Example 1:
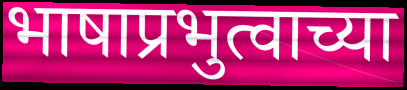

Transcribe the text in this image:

भाषाप्रभुत्वाच्या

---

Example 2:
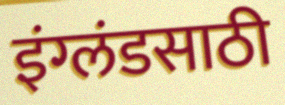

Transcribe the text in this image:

इंग्लंडसाठी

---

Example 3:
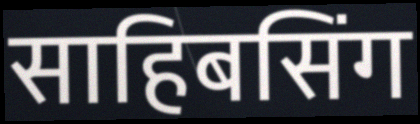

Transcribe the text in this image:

साहिबसिंग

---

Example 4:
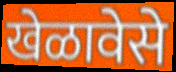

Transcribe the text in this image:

खेळावेसे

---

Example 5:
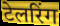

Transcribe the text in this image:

टेलरिंग